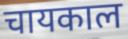
चायकाल